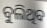
ବୁଲିଥିବ